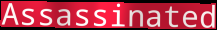
Assassinated